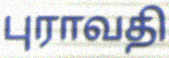
புராவதி